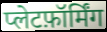
प्लेटफ़ॉर्मिंग